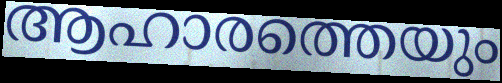
ആഹാരത്തെയും